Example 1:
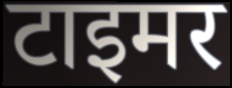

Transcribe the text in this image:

टाइमर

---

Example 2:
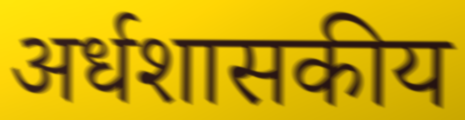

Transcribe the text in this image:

अर्धशासकीय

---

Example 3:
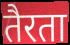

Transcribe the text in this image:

तैरता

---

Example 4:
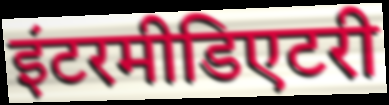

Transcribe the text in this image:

इंटरमीडिएटरी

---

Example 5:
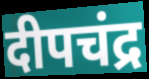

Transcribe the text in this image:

दीपचंद्र